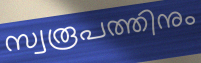
സ്വരൂപത്തിനും